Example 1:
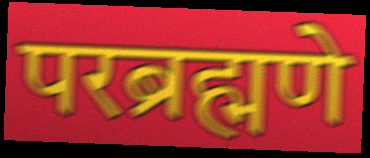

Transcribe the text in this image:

परब्रह्मणे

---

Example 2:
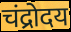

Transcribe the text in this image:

चंद्रोदय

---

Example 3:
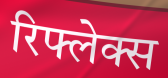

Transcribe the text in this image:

रिफ्लेक्स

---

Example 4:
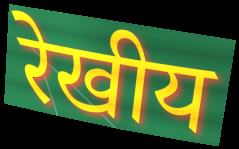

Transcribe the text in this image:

रेखीय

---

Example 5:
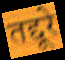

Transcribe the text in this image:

तद्दूरे